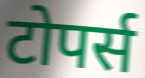
टोपर्स